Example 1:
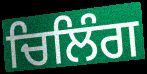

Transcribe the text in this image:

ਚਿਲਿੰਗ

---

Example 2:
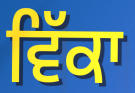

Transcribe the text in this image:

ਵਿੱਕਾ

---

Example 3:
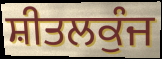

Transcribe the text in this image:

ਸ਼ੀਤਲਕੁੰਜ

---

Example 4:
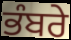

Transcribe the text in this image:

ਭੰਬਰੇ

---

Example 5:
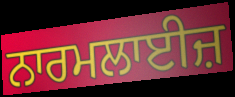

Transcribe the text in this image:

ਨਾਰਮਲਾਈਜ਼